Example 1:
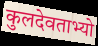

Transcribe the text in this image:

कुलदेवताभ्यो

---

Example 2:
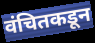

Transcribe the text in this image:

वंचितकडून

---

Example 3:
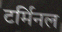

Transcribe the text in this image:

टर्मिनल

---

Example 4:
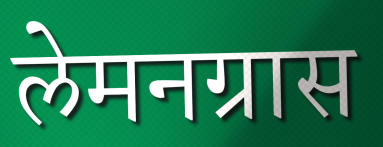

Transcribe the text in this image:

लेमनग्रास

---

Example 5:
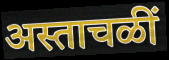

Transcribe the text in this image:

अस्ताचळीं